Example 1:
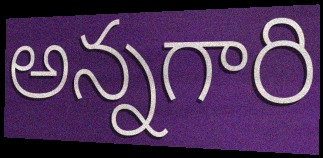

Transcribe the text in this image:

అన్నగారి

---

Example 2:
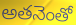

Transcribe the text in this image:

అతనెంతో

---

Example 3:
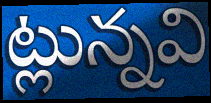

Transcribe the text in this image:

ట్లున్నవి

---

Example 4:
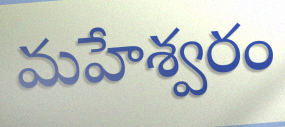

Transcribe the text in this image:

మహేశ్వరం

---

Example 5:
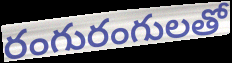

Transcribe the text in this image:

రంగురంగులతో